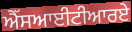
ਐੱਸਆਈਟੀਆਰਏ